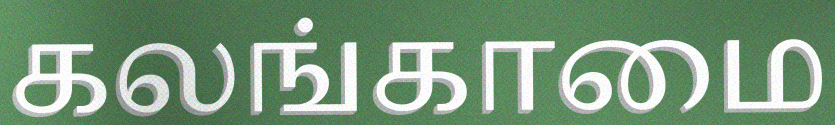
கலங்காமை